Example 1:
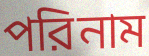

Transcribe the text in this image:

পরিনাম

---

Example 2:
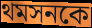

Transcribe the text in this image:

থমসনকে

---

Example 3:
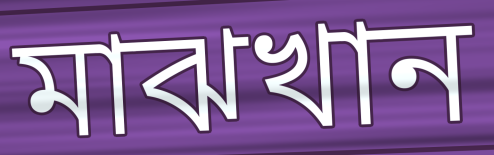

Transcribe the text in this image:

মাঝখান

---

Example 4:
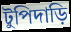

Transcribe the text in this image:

টুপিদাড়ি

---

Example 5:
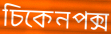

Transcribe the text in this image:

চিকেনপক্স